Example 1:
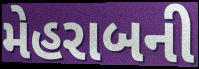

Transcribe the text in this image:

મેહરાબની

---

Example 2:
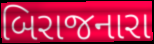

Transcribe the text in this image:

બિરાજનારા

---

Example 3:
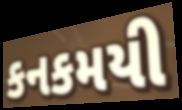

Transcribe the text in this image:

કનકમયી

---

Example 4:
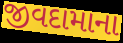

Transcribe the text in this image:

જીવદામાના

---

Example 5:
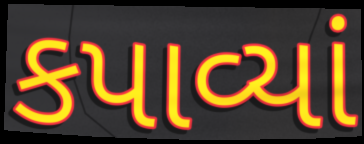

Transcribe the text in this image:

કપાવ્યાં